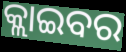
କ୍ଲାଇବର